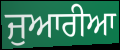
ਜੁਆਰੀਆ